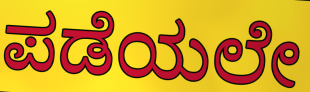
ಪಡೆಯಲೇ